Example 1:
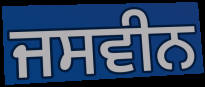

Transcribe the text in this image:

ਜਸਵੀਨ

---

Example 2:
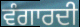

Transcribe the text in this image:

ਵੰਗਾਰਦੀ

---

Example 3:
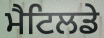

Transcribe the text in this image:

ਮੈਟਿਲਡੇ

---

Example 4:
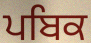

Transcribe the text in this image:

ਪਬਿਕ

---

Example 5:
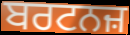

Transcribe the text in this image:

ਬਰਟਨਜ਼